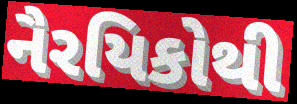
નૈરયિકોથી